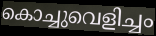
കൊച്ചുവെളിച്ചം